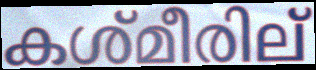
കശ്മീരില്